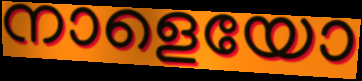
നാളെയോ